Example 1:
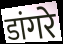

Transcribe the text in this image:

डांगरे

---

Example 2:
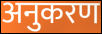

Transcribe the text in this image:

अनुकरण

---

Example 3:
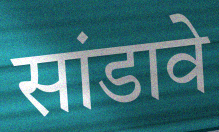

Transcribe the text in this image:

सांडावे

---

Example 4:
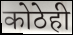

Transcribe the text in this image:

कोठेही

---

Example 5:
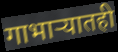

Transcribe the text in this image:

गाभाऱ्यातही